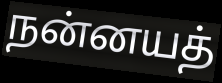
நன்னயத்